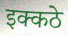
इक्कठे